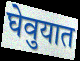
घेवुयात